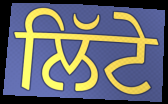
ਲਿੱਟੇ